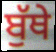
ਬੁੱਥੇ